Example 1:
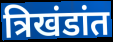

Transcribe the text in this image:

त्रिखंडांत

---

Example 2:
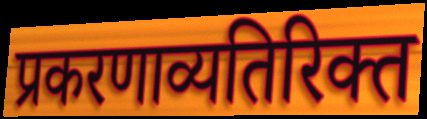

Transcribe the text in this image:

प्रकरणाव्यतिरिक्त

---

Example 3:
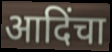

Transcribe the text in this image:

आदिंचा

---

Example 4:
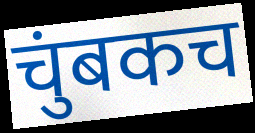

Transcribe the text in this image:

चुंबकच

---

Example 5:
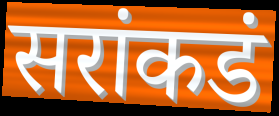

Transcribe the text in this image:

सरांकडं